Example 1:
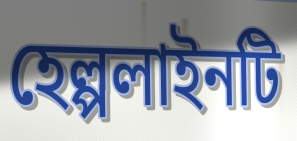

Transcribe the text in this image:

হেল্পলাইনটি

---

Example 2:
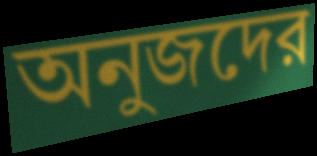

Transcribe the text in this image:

অনুজদের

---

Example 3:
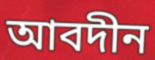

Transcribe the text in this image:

আবদীন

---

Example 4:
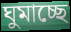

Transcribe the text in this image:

ঘুমাচ্ছে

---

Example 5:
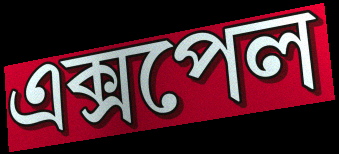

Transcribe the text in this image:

এক্সপেল